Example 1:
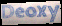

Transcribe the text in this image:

Deoxy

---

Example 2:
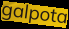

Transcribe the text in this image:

galpota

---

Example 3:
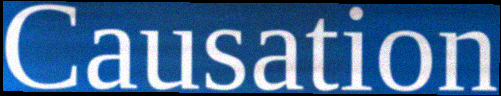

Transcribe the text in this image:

Causation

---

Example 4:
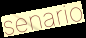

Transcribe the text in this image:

senario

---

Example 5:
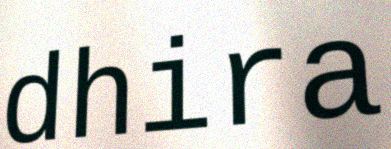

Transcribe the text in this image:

dhira